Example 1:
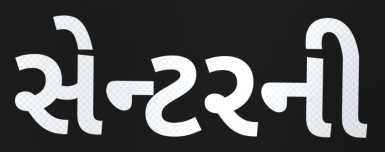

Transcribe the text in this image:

સેન્ટરની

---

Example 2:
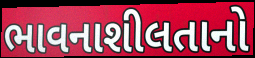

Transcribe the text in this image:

ભાવનાશીલતાનો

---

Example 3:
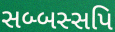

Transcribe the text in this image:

સબ્બસ્સપિ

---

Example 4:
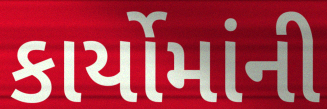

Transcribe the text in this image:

કાર્યોમાંની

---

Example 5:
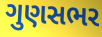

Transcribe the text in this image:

ગુણસભર